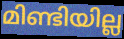
മിണ്ടിയില്ല